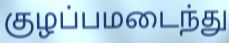
குழப்பமடைந்து